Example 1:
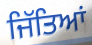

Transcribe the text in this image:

ਜਿੱਤਿਆਂ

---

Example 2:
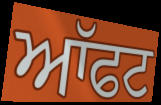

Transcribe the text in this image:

ਆੱਫਟ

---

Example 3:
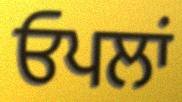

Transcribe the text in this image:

ਓਪਲਾਂ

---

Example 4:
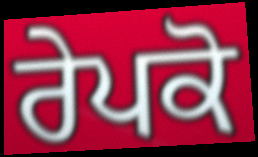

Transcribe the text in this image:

ਰੇਪਕੋ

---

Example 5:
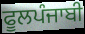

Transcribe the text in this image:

ਫੂਲਪੰਜਾਬੀ